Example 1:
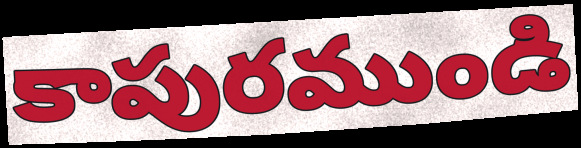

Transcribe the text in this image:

కాపురముండి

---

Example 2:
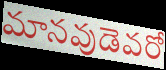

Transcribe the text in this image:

మానవుడెవరో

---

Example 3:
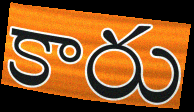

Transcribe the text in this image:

కారు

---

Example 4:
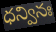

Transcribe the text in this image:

ధన్వినః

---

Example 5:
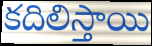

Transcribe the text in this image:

కదిలిస్తాయి